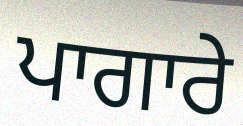
ਪਾਗਾਰੇ